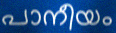
പാനീയം